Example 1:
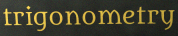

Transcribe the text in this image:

trigonometry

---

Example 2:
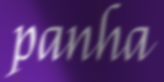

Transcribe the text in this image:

panha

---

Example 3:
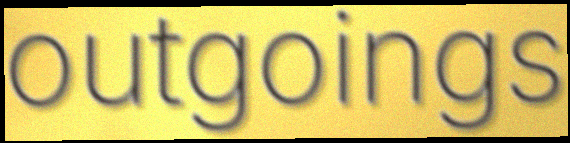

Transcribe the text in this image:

outgoings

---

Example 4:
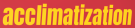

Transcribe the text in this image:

acclimatization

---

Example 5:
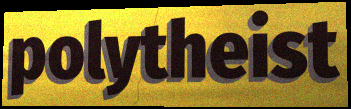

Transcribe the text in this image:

polytheist